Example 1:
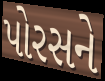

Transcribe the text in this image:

પોરસને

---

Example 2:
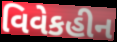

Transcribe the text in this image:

વિવેકહીન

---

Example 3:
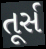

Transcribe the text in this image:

તૂર્સ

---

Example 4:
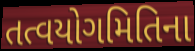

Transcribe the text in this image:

તત્વયોગમિતિના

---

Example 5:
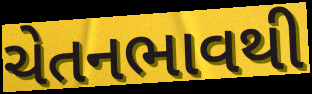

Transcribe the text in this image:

ચેતનભાવથી